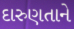
દારુણતાને